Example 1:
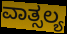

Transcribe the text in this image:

ವಾತ್ಸಲ್ಯ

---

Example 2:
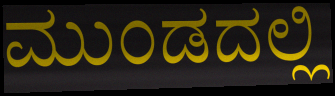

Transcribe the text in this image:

ಮುಂಡದಲ್ಲಿ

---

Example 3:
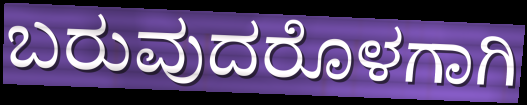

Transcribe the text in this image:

ಬರುವುದರೊಳಗಾಗಿ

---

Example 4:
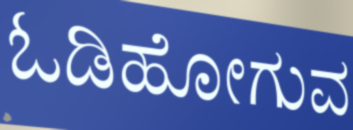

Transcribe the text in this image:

ಓಡಿಹೋಗುವ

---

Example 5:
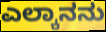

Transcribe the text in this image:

ಎಲ್ಕಾನನು